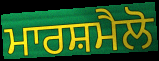
ਮਾਰਸ਼ਮੈਲੋ